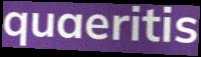
quaeritis